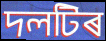
দলটিৰ